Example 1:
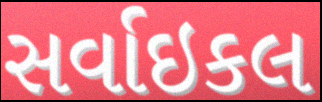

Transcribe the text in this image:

સર્વાઇકલ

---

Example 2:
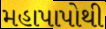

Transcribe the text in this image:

મહાપાપોથી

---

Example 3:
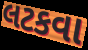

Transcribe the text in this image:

લટકવા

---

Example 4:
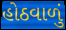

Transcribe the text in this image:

હોઠવાળું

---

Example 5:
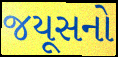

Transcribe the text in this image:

જયૂસનો